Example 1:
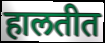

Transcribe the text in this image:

हालतीत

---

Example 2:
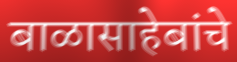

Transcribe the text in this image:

बाळासाहेबांचे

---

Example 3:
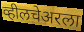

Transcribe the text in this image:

व्हीलचेअरला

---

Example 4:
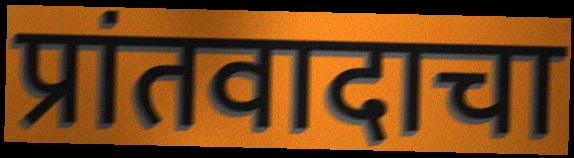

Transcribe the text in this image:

प्रांतवादाचा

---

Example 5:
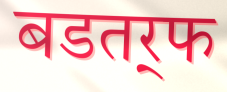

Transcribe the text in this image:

बडतर्फ